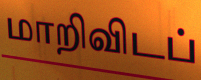
மாறிவிடப்